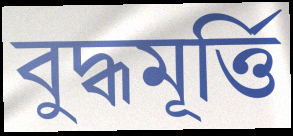
বুদ্ধমূর্ত্তি